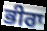
ਭੀਰਾ